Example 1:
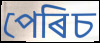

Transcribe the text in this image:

পেৰিচ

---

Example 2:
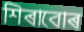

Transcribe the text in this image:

শিৰাবোৰ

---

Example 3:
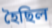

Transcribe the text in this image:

হৈছিল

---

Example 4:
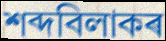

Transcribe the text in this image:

শব্দবিলাকৰ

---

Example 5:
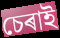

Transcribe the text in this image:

চেৰাই